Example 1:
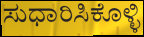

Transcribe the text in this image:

ಸುಧಾರಿಸಿಕೊಳ್ಳಿ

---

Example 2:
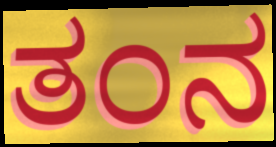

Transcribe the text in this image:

ತಂನ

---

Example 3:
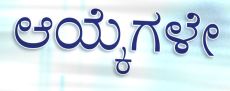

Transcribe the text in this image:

ಆಯ್ಕೆಗಳೇ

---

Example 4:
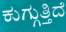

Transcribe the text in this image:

ಕುಗ್ಗುತ್ತಿದೆ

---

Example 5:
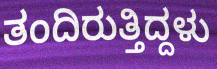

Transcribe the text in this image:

ತಂದಿರುತ್ತಿದ್ದಳು